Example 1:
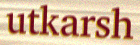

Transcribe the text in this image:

utkarsh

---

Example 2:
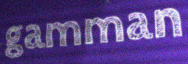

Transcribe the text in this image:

gamman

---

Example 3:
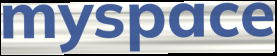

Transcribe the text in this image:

myspace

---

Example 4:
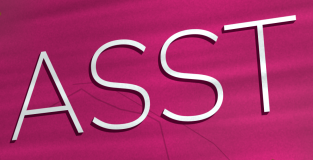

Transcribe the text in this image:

ASST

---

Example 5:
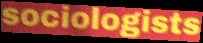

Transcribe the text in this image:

sociologists